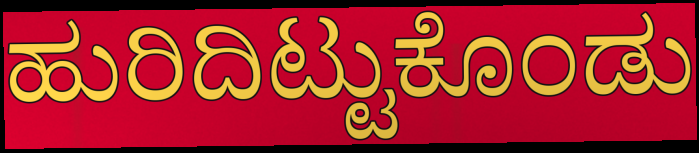
ಹುರಿದಿಟ್ಟುಕೊಂಡು